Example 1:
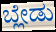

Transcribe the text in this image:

ಬ್ಲೇಡು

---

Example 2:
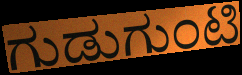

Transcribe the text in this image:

ಗುಡುಗುಂಟಿ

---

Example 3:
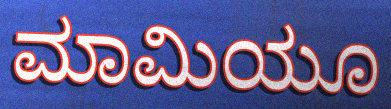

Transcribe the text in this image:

ಮಾಮಿಯೂ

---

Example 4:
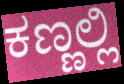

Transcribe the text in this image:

ಕಣ್ಣಲ್ಲಿ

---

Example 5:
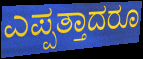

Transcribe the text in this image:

ಎಪ್ಪತ್ತಾದರೂ